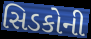
સિડકોની